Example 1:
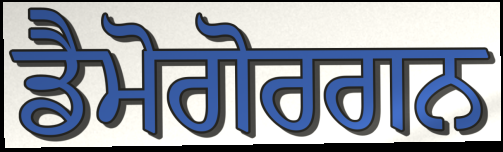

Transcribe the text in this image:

ਡੈਮੋਗੋਰਗਨ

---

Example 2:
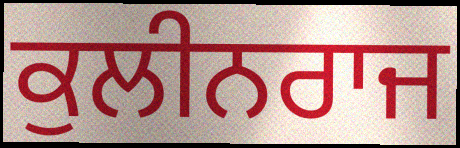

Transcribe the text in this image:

ਕੁਲੀਨਰਾਜ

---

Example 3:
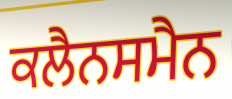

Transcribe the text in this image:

ਕਲੈਨਸਮੈਨ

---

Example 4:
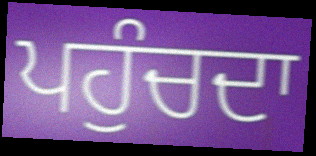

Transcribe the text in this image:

ਪਹੁੰਚਦਾ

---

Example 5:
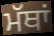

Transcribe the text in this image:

ਮੱਥਾਂ